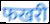
फखरी